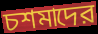
চশমাদের